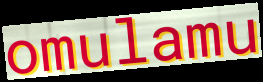
omulamu